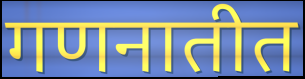
गणनातीत